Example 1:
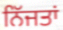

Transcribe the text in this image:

ਨਿੱਜਤਾਂ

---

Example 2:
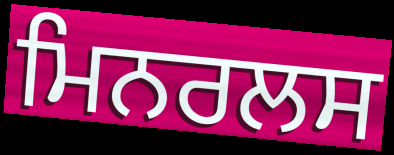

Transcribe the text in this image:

ਮਿਨਰਲਸ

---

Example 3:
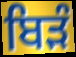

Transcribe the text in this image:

ਬਿੜੰ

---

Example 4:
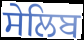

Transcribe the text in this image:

ਸੇਲਿਬ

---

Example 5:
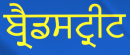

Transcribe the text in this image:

ਬ੍ਰੈਡਸਟ੍ਰੀਟ